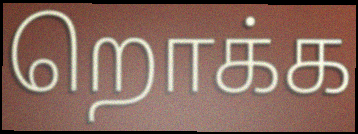
றொக்க